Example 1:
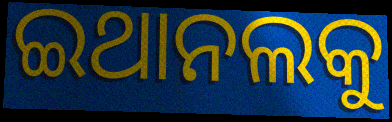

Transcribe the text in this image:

ଇଥାନଲକୁ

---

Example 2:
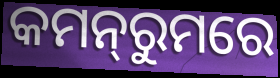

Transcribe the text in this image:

କମନ୍‌ରୁମରେ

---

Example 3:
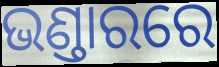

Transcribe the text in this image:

ଭଣ୍ଡାରରେ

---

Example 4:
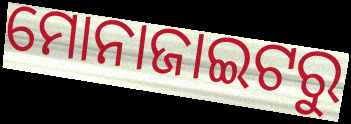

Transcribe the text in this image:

ମୋନାଜାଇଟରୁ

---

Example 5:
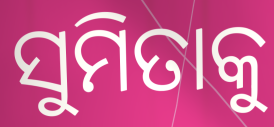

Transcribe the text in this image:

ସୁମିତାକୁ